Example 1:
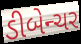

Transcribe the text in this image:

ડીબેન્ચર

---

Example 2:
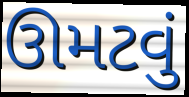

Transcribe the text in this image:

ઊમટવું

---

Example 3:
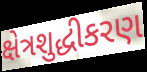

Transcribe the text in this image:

ક્ષેત્રશુદ્ધીકરણ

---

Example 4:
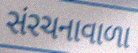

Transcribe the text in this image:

સંરચનાવાળા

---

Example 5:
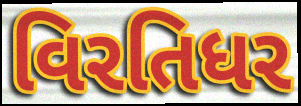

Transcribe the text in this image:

વિરતિધર